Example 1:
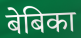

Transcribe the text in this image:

बेबिका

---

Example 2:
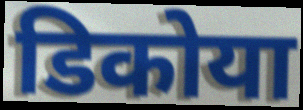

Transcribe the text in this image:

डिकोया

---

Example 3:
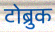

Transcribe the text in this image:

टोब्रुक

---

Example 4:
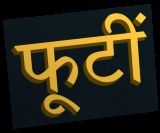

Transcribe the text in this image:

फूटीं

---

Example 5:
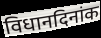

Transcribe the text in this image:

विधानदिनांक